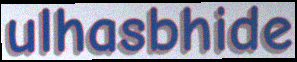
ulhasbhide